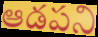
ఆడపని